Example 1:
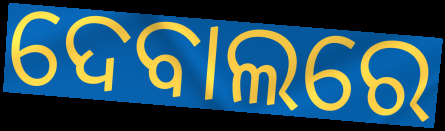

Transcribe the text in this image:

ଦେବାଲରେ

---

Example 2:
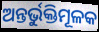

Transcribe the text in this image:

ଅନ୍ତର୍ଭୁକ୍ତିମୂଳକ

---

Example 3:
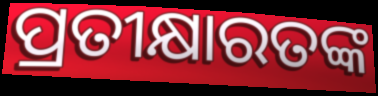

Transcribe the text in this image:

ପ୍ରତୀକ୍ଷାରତଙ୍କ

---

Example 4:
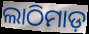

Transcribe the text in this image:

ଲାଠିମାଡ଼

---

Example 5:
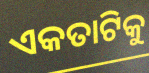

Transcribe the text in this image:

ଏକତାଟିକୁ